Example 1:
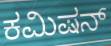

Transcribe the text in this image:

ಕಮಿಷನ್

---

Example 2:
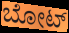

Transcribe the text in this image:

ಬೋಟ್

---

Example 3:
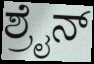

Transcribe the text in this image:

ಶ್ರೈನ್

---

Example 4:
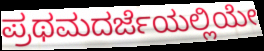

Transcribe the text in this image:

ಪ್ರಥಮದರ್ಜೆಯಲ್ಲಿಯೇ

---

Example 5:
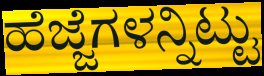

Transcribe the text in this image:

ಹೆಜ್ಜೆಗಳನ್ನಿಟ್ಟು